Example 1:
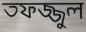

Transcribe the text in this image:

তফজ্জুল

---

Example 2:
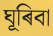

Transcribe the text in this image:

ঘূৰিবা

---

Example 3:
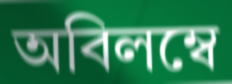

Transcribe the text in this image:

অবিলম্বে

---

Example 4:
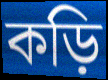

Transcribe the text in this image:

কড়ি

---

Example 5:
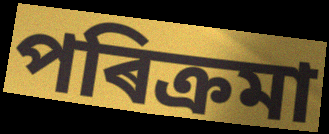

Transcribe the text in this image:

পৰিক্ৰমা